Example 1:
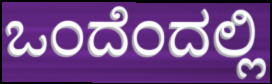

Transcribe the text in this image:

ಒಂದೆಂದಲ್ಲಿ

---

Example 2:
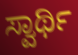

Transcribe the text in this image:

ಸ್ವಾರ್ಥಿ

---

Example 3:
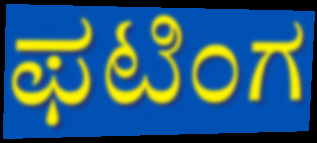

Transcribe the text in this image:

ಫಟಿಂಗ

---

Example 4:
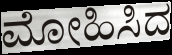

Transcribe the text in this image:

ಮೋಹಿಸಿದ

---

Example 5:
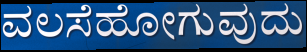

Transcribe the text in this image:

ವಲಸೆಹೋಗುವುದು